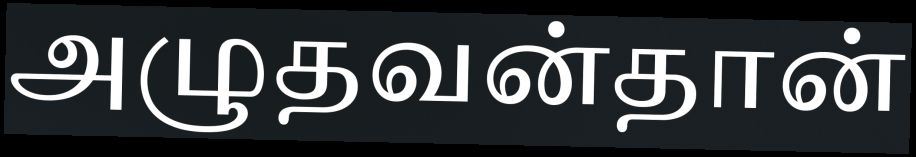
அழுதவன்தான்